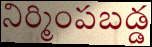
నిర్మింపబడ్డ